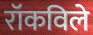
रॉकविले